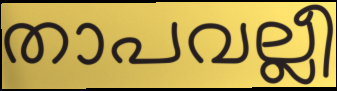
താപവല്ലീ